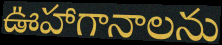
ఊహాగానాలను